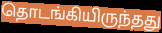
தொடங்கியிருந்தது